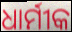
ଧାର୍ମୀକ